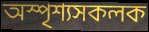
অস্পৃশ্যসকলক